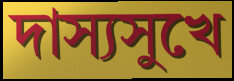
দাস্যসুখে